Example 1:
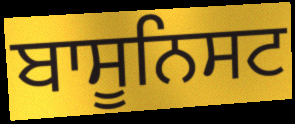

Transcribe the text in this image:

ਬਾਸੂਨਿਸਟ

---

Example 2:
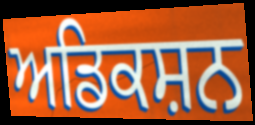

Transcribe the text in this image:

ਅਡਿਕਸ਼ਨ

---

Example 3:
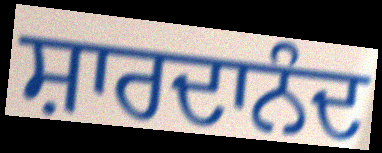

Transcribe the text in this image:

ਸ਼ਾਰਦਾਨੰਦ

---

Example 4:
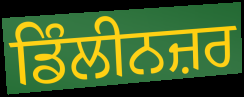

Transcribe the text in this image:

ਡਿੰਲੀਨਜ਼ਰ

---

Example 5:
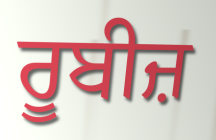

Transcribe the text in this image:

ਰੂਬੀਜ਼